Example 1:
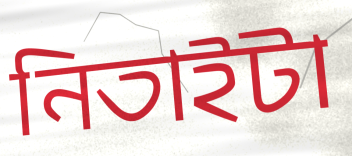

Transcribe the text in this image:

নিতাইটা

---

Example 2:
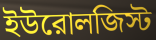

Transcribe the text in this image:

ইউরোলজিস্ট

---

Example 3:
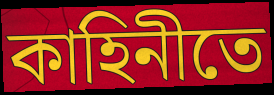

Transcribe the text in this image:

কাহিনীতে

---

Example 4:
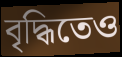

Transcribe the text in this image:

বৃদ্ধিতেও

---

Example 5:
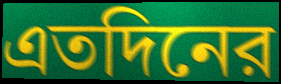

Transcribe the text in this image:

এতদিনের